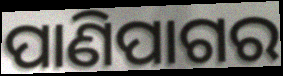
ପାଣିପାଗର